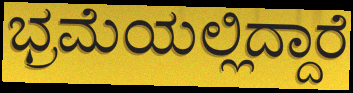
ಭ್ರಮೆಯಲ್ಲಿದ್ದಾರೆ